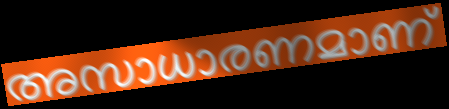
അസാധാരണമാണ്